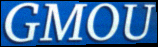
GMOU